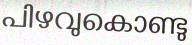
പിഴവുകൊണ്ടു